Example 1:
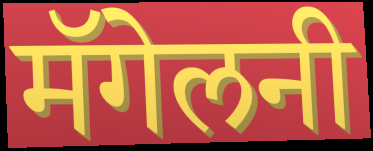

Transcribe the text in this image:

मॅगेलनी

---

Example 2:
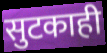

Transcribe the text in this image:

सुटकाही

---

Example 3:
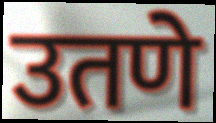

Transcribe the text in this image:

उतणे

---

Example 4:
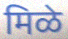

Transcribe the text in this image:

मिळे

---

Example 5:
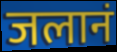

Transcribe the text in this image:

जलानं